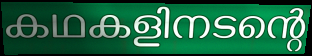
കഥകളിനടന്റെ